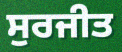
ਸੁਰਜੀਤ